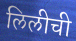
लिलीची